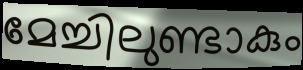
മേച്ചിലുണ്ടാകും